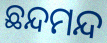
ଛନ୍ଦମନ୍ଦ